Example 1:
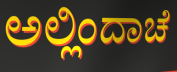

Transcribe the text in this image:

ಅಲ್ಲಿಂದಾಚೆ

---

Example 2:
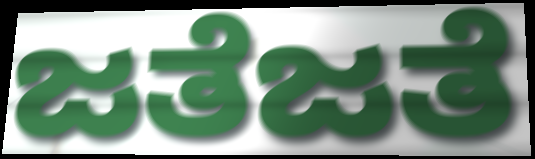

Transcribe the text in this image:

ಜತೆಜತೆ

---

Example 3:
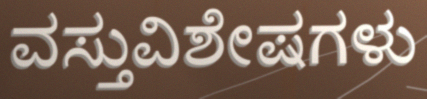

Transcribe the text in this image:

ವಸ್ತುವಿಶೇಷಗಳು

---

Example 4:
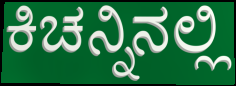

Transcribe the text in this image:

ಕಿಚನ್ನಿನಲ್ಲಿ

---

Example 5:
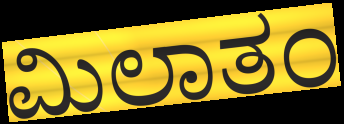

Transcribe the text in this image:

ಮಿಲಾತಂ